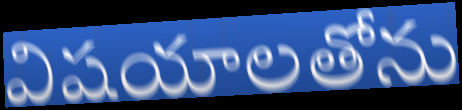
విషయాలతోను